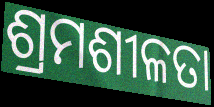
ଶ୍ରମଶୀଳତା